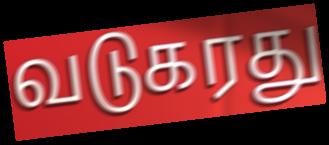
வடுகரது